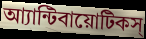
আ্যান্টিবায়োটিকস্